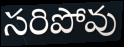
సరిపోవు